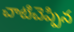
చాటిచెప్పిన